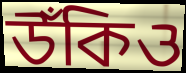
উঁকিও